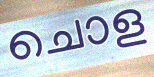
ചൊള